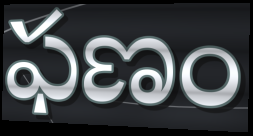
ఫణం